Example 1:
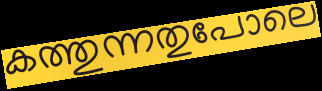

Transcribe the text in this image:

കത്തുന്നതുപോലെ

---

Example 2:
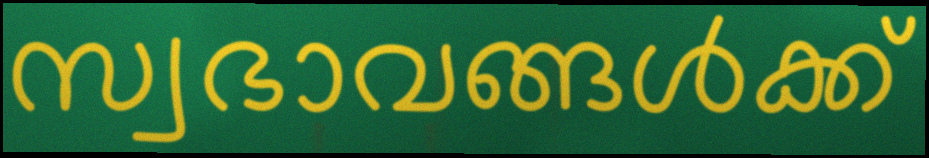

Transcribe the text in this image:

സ്വഭാവങ്ങൾക്ക്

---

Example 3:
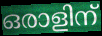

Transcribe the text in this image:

ഒരാളിന്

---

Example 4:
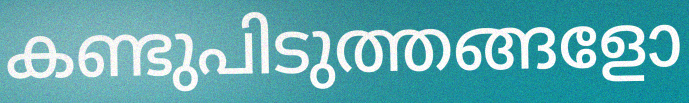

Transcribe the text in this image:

കണ്ടുപിടുത്തങ്ങളോ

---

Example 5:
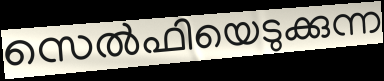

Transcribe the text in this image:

സെൽഫിയെടുക്കുന്ന